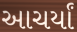
આચર્યાં